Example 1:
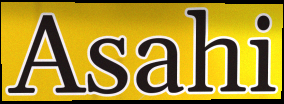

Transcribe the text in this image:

Asahi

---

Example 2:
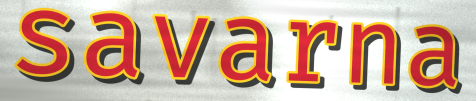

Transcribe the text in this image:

savarna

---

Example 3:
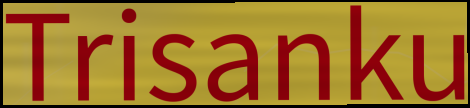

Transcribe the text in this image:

Trisanku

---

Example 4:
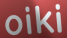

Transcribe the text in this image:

oiki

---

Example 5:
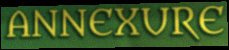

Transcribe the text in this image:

ANNEXURE